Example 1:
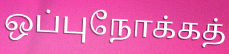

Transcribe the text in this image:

ஒப்புநோக்கத்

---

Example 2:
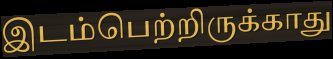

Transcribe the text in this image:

இடம்பெற்றிருக்காது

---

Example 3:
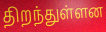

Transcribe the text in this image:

திறந்துள்ளன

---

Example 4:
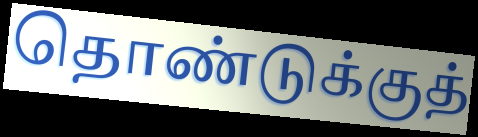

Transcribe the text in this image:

தொண்டுக்குத்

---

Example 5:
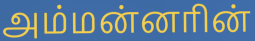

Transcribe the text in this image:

அம்மன்னரின்